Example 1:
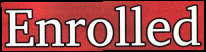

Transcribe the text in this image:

Enrolled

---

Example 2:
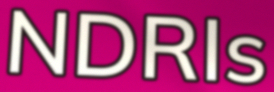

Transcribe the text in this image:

NDRIs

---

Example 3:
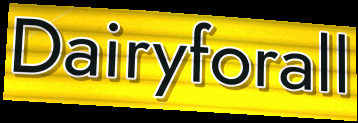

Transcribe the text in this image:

Dairyforall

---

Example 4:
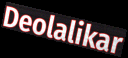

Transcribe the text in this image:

Deolalikar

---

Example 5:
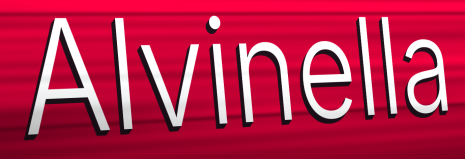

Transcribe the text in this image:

Alvinella